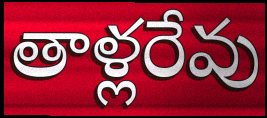
తాళ్లరేవు